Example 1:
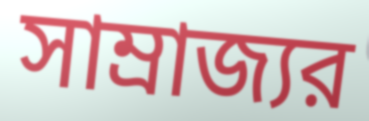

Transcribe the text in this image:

সাম্রাজ্যর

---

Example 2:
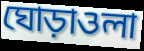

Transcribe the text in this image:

ঘোড়াওলা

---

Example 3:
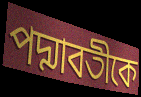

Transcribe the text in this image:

পদ্মাবতীকে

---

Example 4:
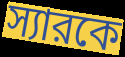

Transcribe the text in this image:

স্যারকে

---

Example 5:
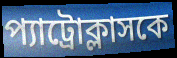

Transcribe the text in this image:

প্যাট্রোক্লাসকে